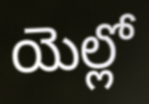
యెల్లో